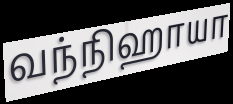
வந்நிஹாயா